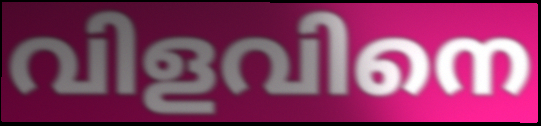
വിളവിനെ